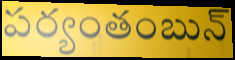
పర్యంతంబున్